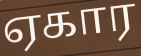
ஏகார